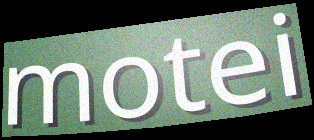
motei